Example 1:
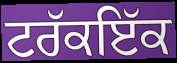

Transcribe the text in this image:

ਟਰੱਕਇੱਕ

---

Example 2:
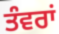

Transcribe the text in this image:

ਤੰਵਰਾਂ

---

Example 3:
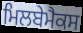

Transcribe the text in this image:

ਮਿਲਬੇਮੈਕਸ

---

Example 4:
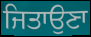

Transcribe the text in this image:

ਜਿਤਾਉਣਾ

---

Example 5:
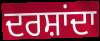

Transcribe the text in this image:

ਦਰਸ਼ਾਂਦਾ